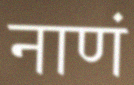
नाणं